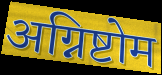
अग्निष्टोम